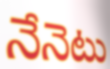
నేనెటు